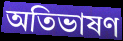
অতিভাষণ